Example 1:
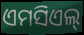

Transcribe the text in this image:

ଏମସିଏଲ୍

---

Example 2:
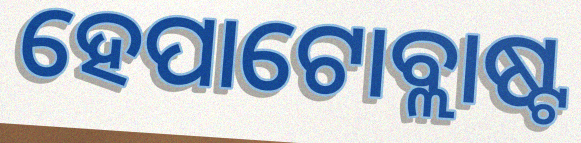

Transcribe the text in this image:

ହେପାଟୋବ୍ଲାଷ୍ଟ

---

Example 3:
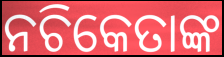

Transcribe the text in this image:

ନଚିକେତାଙ୍କ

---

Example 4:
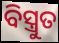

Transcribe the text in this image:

ବିସ୍ତ୍ରୁତ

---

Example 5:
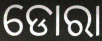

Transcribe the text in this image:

ଡୋରା